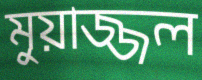
মুয়াজ্জল